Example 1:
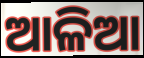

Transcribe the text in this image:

ଆଳିଆ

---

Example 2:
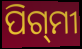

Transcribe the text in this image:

ପିଗ୍‌ମୀ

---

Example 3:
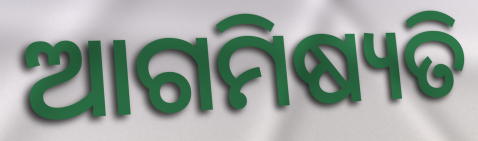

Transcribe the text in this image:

ଆଗମିଷ୍ୟତି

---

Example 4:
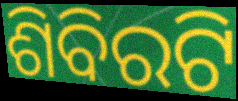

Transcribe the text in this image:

ଶିବିରଟି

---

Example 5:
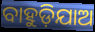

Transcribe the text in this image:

ବାହୁଡ଼ିଯାଅ